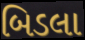
બિડલા